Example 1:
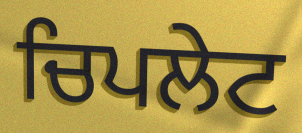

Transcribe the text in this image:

ਚਿਪਲੇਟ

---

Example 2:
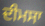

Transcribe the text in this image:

ਦੀਮਸਾ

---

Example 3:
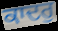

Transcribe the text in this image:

ਕਾਦਰੁ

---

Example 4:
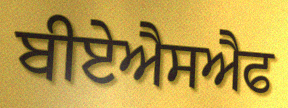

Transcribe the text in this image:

ਬੀਏਐਸਐਫ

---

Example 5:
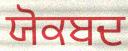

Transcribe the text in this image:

ਯੋਕਬਦ